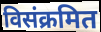
विसंक्रमित